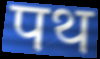
पथ